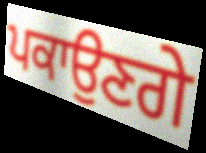
ਪਕਾਉਣਗੇ